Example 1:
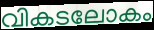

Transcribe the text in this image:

വികടലോകം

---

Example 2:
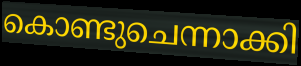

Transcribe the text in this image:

കൊണ്ടുചെന്നാക്കി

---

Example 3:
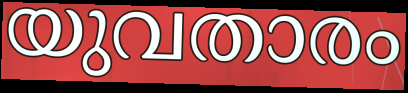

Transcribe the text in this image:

യുവതാരം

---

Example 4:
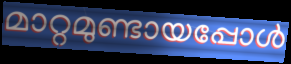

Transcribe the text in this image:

മാറ്റമുണ്ടായപ്പോൾ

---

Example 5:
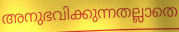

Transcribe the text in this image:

അനുഭവിക്കുന്നതല്ലാതെ